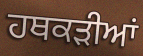
ਹਥਕੜੀਆਂ